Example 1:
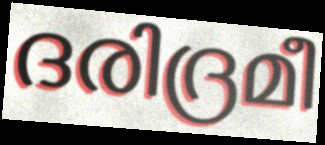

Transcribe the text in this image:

ദരിദ്രമീ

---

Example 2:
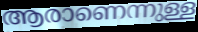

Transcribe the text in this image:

ആരാണെന്നുള്ള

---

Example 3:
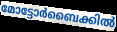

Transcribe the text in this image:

മോട്ടോർബൈക്കിൽ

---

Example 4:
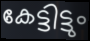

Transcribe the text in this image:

കേട്ടിട്ടും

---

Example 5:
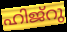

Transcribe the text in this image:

ഹിജ്റു